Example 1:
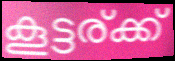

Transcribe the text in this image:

കൂട്ടര്ക്ക്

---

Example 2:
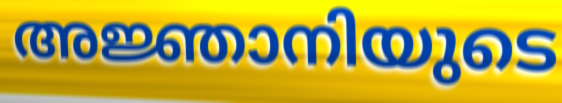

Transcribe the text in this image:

അജ്ഞാനിയുടെ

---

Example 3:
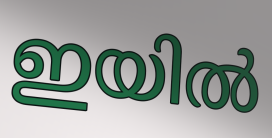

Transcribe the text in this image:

ഇയിൽ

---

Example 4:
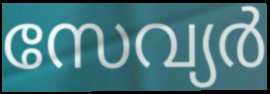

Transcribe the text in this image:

സേവ്യർ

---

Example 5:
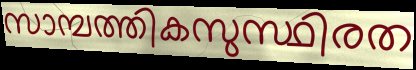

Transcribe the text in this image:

സാമ്പത്തികസുസ്ഥിരത